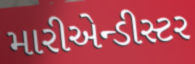
મારીએન્ડીસ્ટર